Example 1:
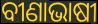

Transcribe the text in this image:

ବୀଣାଭାଷୀ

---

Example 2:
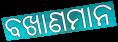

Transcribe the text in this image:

ବଖାଣମାନ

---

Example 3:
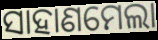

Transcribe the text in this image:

ସାହାଣମେଲା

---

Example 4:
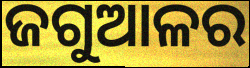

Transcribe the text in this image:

ଜଗୁଆଳର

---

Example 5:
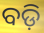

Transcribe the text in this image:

ବଡ଼ି